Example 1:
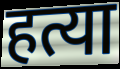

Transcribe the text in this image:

हत्या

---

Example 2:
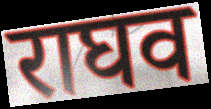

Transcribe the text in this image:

राघव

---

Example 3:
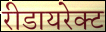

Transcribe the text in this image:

रीडायरेक्ट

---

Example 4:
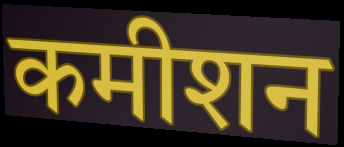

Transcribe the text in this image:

कमीशन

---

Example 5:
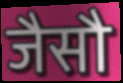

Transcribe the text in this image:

जैसौ